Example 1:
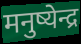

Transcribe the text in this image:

मनुष्येन्द्र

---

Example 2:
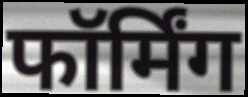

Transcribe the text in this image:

फॉर्मिंग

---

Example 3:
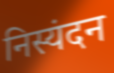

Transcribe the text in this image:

निस्यंदन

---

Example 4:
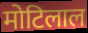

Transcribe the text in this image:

मोटिलाल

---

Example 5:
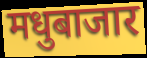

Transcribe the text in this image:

मधुबाजार